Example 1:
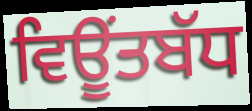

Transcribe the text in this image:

ਵਿਊਂਤਬੱਧ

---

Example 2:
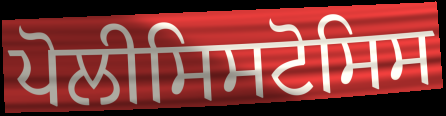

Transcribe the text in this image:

ਪੋਲੀਸਿਸਟੋਸਿਸ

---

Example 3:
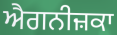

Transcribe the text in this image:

ਐਗਨੀਜ਼ਕਾ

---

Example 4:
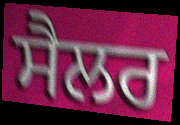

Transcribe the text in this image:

ਸੈਲਰ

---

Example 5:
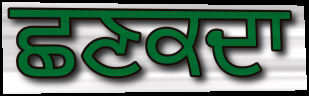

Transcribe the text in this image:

ਛਣਕਦਾ